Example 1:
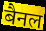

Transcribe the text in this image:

बैनल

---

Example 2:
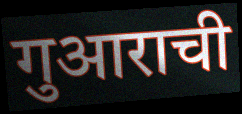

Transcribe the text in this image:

गुआराची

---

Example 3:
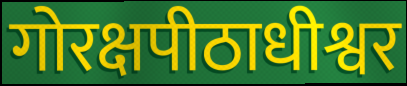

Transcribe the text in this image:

गोरक्षपीठाधीश्वर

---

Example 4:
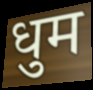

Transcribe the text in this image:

धुम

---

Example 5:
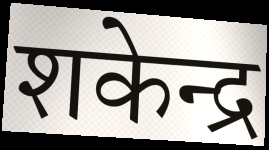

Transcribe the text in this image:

शकेन्द्र